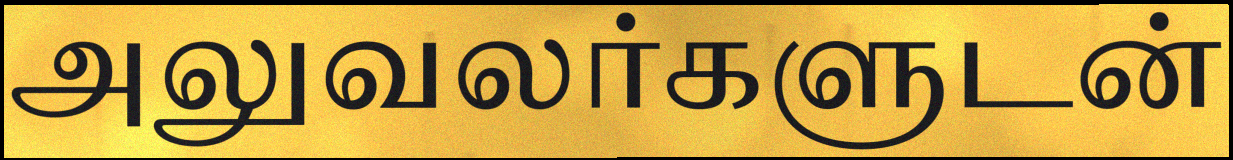
அலுவலர்களுடன்